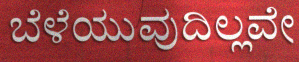
ಬೆಳೆಯುವುದಿಲ್ಲವೇ